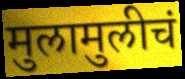
मुलामुलीचं